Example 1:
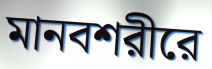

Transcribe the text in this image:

মানবশরীরে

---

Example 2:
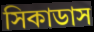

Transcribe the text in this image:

সিকাডাস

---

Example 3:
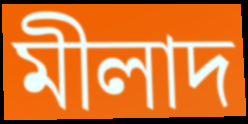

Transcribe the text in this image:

মীলাদ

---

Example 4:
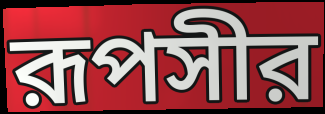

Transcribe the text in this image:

রূপসীর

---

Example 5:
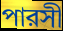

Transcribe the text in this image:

পারসী